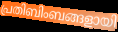
പ്രതിബിംബങ്ങളായി